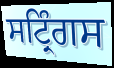
ਸਟ੍ਰਿੰਗਸ